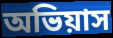
অভিয়াস